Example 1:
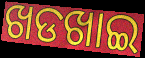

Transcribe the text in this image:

ଖଡଖାଇ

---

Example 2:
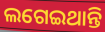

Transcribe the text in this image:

ଲଗେଇଥାନ୍ତି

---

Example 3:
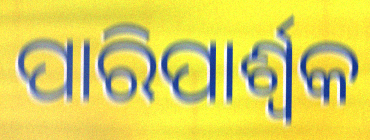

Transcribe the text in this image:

ପାରିପାର୍ଶ୍ଵକ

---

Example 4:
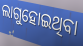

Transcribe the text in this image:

ଲାଗୁହୋଇଥିବା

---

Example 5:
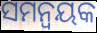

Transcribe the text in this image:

ସମନ୍ୱୟକ